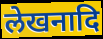
लेखनादि